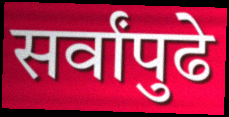
सर्वांपुढे